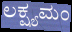
ಲಕ್ಷ್ಯಮಂ